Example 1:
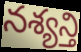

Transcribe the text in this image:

నశ్యన్తి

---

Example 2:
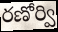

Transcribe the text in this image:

రణోర్వి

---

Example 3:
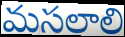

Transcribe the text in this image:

మసలాలి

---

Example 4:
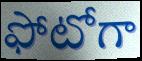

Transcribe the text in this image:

ఫోటోగా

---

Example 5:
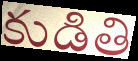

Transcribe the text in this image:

కుడితి